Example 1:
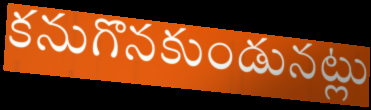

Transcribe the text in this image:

కనుగొనకుండునట్లు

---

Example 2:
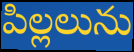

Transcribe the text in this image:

పిల్లలును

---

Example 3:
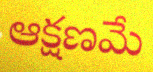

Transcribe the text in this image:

ఆక్షణమే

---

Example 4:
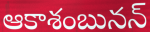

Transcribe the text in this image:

ఆకాశంబునన్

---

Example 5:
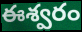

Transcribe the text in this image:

ఈశ్వరం